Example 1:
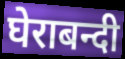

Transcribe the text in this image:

घेराबन्दी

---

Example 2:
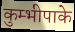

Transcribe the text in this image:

कुम्भीपाके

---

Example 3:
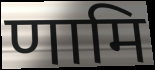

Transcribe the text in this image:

णामि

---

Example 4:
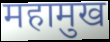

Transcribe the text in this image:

महामुख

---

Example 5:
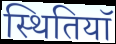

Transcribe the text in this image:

स्थितियॉ